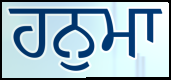
ਹਨੁਮਾ